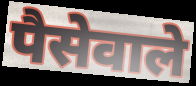
पैसेवाले